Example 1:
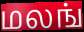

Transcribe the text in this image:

மலங்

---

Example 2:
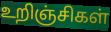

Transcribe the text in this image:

உறிஞ்சிகள்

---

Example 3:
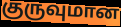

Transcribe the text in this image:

குருவுமான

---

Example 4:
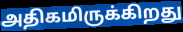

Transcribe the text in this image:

அதிகமிருக்கிறது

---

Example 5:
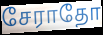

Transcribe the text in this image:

சேராதோ